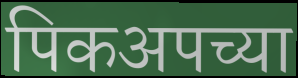
पिकअपच्या